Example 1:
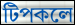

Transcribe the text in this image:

টিপকলে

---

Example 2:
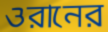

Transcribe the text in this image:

ওরানের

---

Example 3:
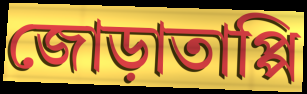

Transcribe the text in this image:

জোড়াতাপ্পি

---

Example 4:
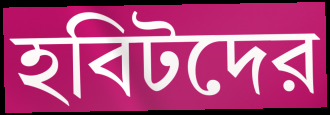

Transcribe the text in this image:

হবিটদের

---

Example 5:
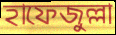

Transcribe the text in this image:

হাফেজুল্লা